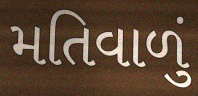
મતિવાળું